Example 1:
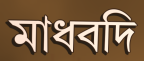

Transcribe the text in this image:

মাধবদি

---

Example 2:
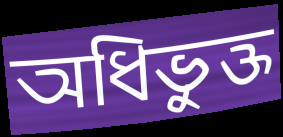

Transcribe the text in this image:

অধিভুক্ত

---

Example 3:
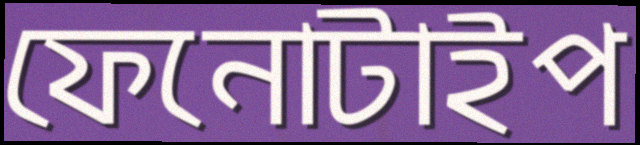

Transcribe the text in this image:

ফেনোটাইপ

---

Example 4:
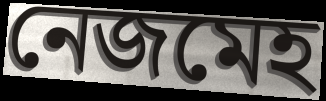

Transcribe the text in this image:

নেজমেহ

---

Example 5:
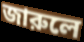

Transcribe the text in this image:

জারুলে